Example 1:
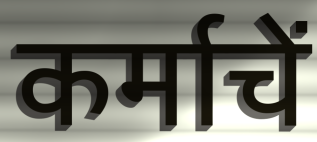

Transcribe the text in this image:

कर्माचें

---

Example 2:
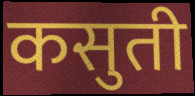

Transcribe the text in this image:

कसुती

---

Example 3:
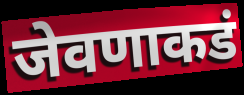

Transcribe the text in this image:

जेवणाकडं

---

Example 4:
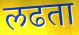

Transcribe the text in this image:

लढता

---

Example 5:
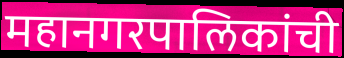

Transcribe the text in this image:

महानगरपालिकांची